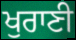
ਖੁਰਾਣੀ